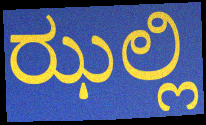
ಝಲ್ಲಿ